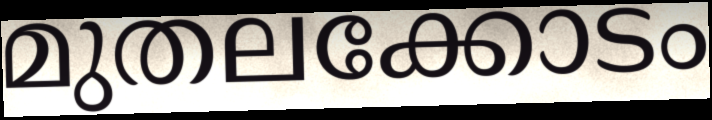
മുതലക്കോടം